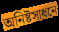
অনিষ্টসাধনে